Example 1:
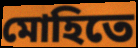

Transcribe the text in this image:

মোহিতে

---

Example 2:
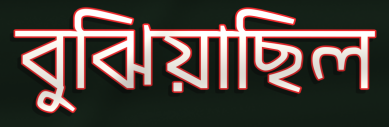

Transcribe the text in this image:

বুঝিয়াছিল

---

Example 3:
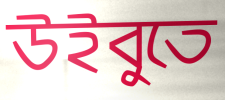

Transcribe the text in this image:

উইবুতে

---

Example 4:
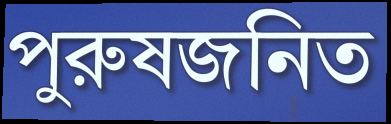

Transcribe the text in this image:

পুরুষজনিত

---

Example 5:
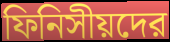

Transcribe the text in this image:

ফিনিসীয়দের